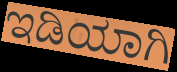
ಇಡಿಯಾಗಿ